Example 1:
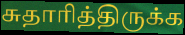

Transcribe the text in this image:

சுதாரித்திருக்க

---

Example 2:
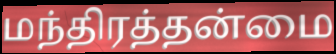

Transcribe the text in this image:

மந்திரத்தன்மை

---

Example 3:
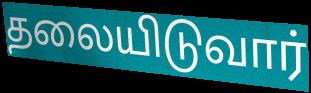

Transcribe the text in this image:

தலையிடுவார்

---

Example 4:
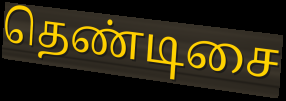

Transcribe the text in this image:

தெண்டிசை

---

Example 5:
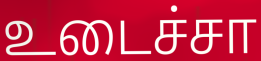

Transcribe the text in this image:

உடைச்சா